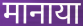
मानाया